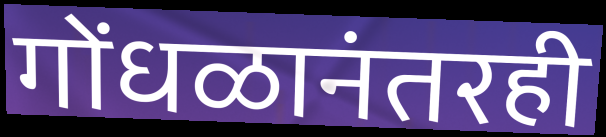
गोंधळानंतरही